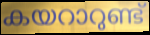
കയറാറുണ്ട്